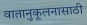
वातानुकूलनासाठी